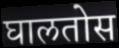
घालतोस